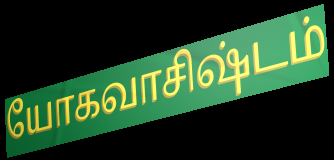
யோகவாசிஷ்டம்